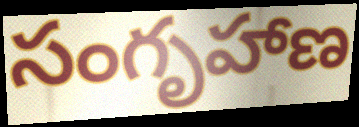
సంగృహాణ